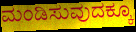
ಮಂಡಿಸುವುದಕ್ಕೂ